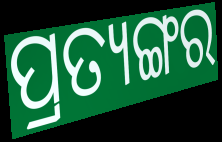
ପ୍ରତ୍ୟଙ୍ଗର